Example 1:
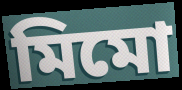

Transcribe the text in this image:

মিমো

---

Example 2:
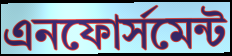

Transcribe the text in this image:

এনফোর্সমেন্ট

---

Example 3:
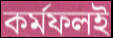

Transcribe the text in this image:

কর্মফলই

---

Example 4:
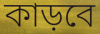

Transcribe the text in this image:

কাড়বে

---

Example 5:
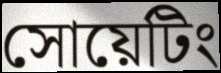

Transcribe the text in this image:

সোয়েটিং